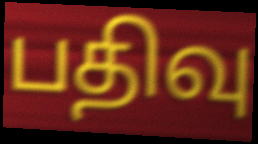
பதிவு